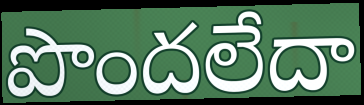
పొందలేదా